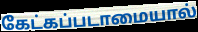
கேட்கப்படாமையால்